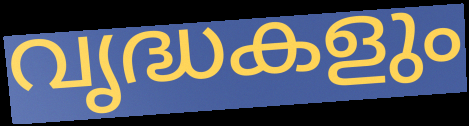
വൃദ്ധകളും